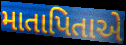
માતાપિતાએ